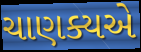
ચાણક્યએ